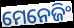
ମେନେଜିଂ